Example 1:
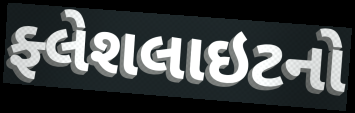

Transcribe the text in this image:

ફ્લેશલાઇટનો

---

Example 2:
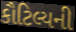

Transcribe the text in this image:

કૌટિલ્યની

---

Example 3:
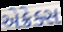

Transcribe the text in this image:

એક્રેક્સ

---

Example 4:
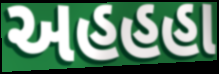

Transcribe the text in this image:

અહહહા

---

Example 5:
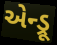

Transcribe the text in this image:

એન્ડ્રૂ